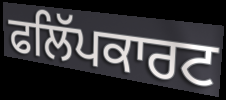
ਫਲਿੱਪਕਾਰਟ